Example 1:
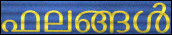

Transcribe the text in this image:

ഫലങ്ങൾ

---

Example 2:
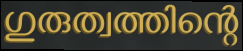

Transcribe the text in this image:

ഗുരുത്വത്തിന്റെ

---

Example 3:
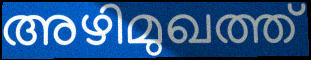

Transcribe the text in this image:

അഴിമുഖത്ത്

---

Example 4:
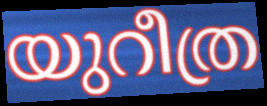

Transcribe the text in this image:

യുറീത്ര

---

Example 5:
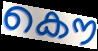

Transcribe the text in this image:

കൌ